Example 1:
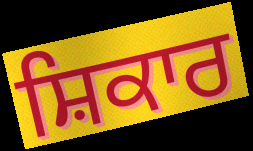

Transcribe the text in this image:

ਸ਼ਿਕਾਰ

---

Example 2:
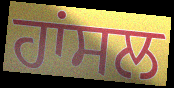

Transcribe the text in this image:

ਹਾਂਸਲ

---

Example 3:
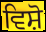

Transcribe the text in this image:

ਵਿਸ਼ੋ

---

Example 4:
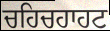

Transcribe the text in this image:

ਚਹਿਚਹਾਹਟ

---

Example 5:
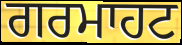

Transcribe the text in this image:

ਗਰਮਾਹਟ